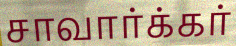
சாவார்க்கர்